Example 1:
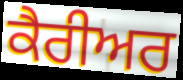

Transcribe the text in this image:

ਕੈਰੀਅਰ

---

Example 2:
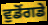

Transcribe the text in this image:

ਵੁਡੋਂਗਡੇ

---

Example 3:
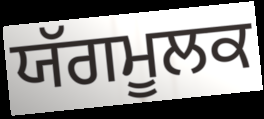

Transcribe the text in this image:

ਯੱਗਮੂਲਕ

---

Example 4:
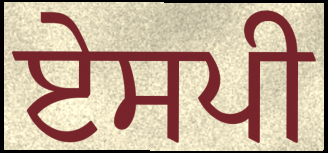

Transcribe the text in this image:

ਏਸਪੀ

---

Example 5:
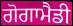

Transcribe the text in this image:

ਗੋਗਾਮੈਡੀ